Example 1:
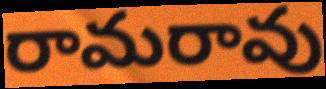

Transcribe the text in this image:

రామరావు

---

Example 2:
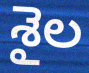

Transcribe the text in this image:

శైల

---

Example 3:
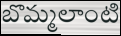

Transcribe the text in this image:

బొమ్మలాంటి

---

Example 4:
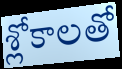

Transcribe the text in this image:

శ్లోకాలతో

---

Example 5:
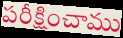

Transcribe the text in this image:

పరీక్షించాము